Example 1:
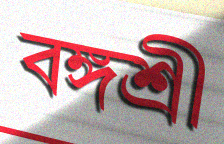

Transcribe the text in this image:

বঙ্গশ্রী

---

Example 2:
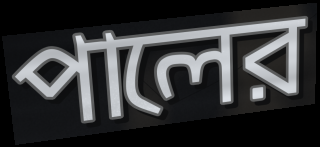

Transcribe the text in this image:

পালের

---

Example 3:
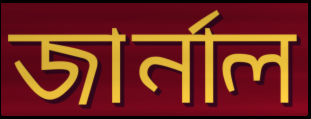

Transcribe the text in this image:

জার্নাল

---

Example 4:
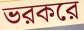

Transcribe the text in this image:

ভরকরে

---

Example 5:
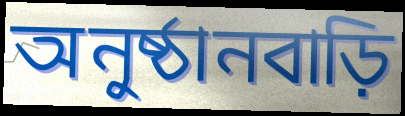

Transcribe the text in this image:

অনুষ্ঠানবাড়ি